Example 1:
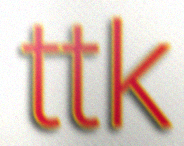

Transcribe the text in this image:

ttk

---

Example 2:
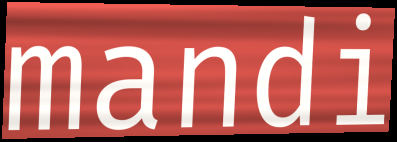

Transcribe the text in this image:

mandi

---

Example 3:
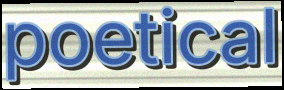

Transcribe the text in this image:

poetical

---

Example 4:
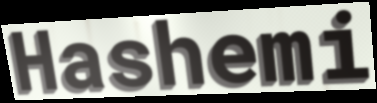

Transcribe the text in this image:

Hashemi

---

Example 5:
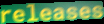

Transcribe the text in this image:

releases